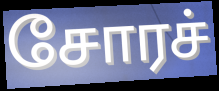
சோரச்